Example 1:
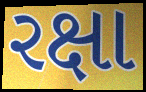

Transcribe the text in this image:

રક્ષા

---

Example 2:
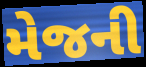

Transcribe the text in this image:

મેજની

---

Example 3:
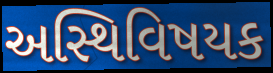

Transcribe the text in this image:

અસ્થિવિષયક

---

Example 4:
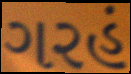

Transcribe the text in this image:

ગરહં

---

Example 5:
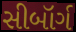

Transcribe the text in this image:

સીબૉર્ગ